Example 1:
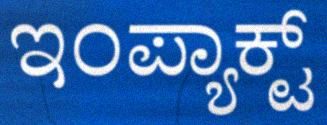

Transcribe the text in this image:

ಇಂಪ್ಯಾಕ್ಟ್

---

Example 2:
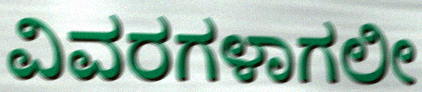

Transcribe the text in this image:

ವಿವರಗಳಾಗಲೀ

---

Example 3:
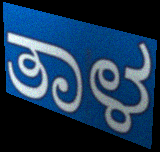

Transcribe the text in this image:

ತಾಳ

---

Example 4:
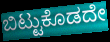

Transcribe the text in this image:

ಬಿಟ್ಟುಕೊಡದೇ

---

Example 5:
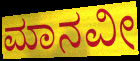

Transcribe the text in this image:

ಮಾನವೀ